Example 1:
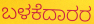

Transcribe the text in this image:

ಬಳಕೆದಾರರ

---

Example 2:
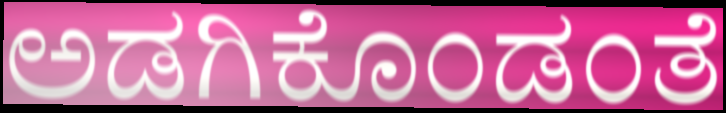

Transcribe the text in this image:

ಅಡಗಿಕೊಂಡಂತೆ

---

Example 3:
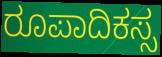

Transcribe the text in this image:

ರೂಪಾದಿಕಸ್ಸ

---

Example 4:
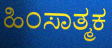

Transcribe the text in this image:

ಹಿಂಸಾತ್ಮಕ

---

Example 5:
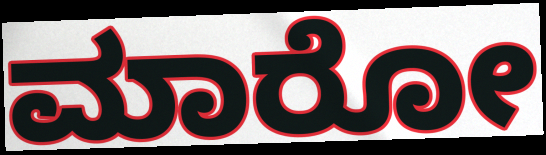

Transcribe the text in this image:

ಮಾರೋ